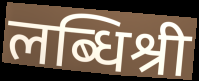
लब्धिश्री